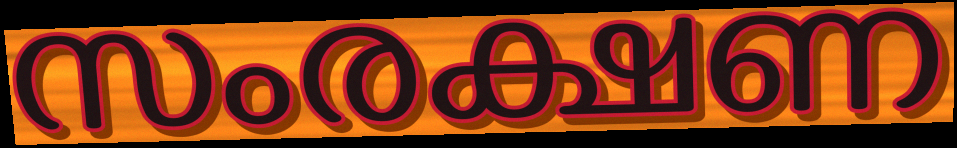
സംരക്ഷണ